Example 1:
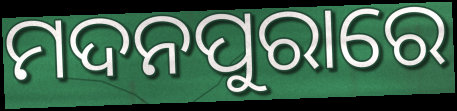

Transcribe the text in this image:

ମଦନପୁରାରେ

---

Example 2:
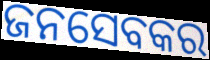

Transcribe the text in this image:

ଜନସେବକର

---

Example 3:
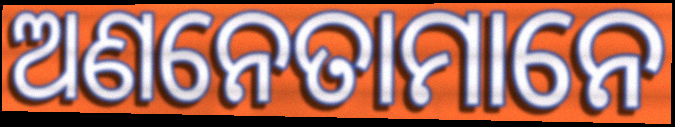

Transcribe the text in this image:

ଅଣନେତାମାନେ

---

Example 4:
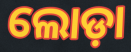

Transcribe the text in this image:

ଲୋଡ଼ା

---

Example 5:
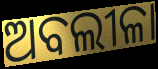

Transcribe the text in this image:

ଅବଲୀଳା